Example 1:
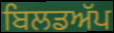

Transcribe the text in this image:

ਬਿਲਡਅੱਪ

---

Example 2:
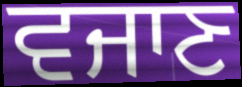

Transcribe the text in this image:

ਵਜਾਣ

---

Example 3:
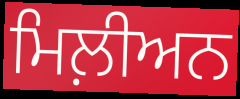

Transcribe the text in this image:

ਮਿਲ਼ੀਅਨ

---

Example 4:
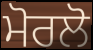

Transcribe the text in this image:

ਮੋਰਲੋ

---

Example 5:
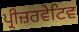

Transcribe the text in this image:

ਪ੍ਰੀਜ਼ਰਵੇਟਿਵ